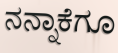
ನನ್ನಾಕೆಗೂ